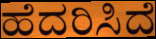
ಹೆದರಿಸಿದೆ